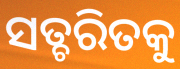
ସତ୍ଚରିତକୁ